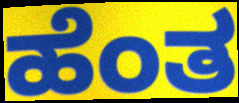
ಹೆಂತ